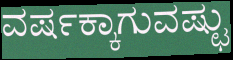
ವರ್ಷಕ್ಕಾಗುವಷ್ಟು